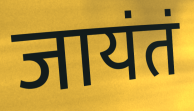
जायंतं